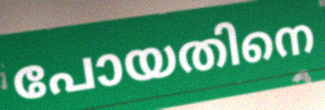
പോയതിനെ